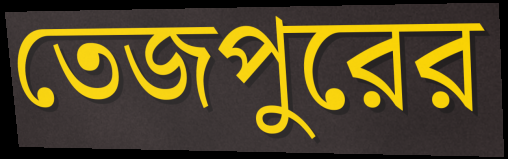
তেজপুরের